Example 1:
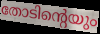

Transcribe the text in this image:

തോടിന്റെയും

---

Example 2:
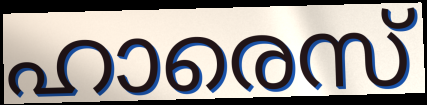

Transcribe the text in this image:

ഹാരെസ്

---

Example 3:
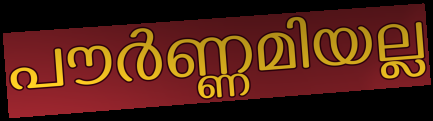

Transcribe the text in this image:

പൗർണ്ണമിയല്ല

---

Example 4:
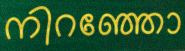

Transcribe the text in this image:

നിറഞ്ഞോ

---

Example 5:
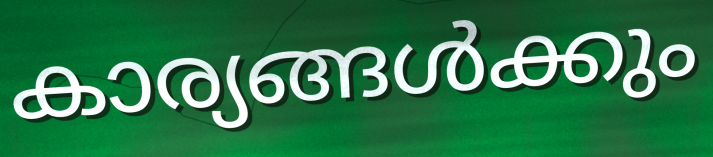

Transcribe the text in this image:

കാര്യങ്ങൾക്കും